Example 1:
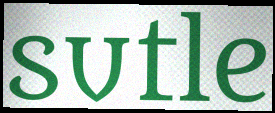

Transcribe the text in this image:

sutle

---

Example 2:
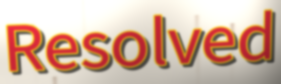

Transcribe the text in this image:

Resolved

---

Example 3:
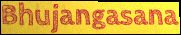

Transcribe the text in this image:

Bhujangasana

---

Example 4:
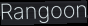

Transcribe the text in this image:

Rangoon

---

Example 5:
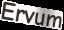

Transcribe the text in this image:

Ervum